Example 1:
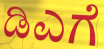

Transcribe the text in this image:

ಡಿಎಗೆ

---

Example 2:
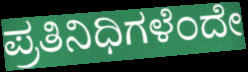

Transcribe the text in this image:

ಪ್ರತಿನಿಧಿಗಳೆಂದೇ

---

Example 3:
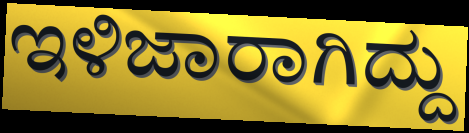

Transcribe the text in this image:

ಇಳಿಜಾರಾಗಿದ್ದು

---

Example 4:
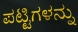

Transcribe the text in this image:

ಪಟ್ಟಿಗಳನ್ನು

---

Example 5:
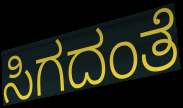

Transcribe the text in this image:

ಸಿಗದಂತೆ